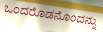
ಒಂದರೊಡನೊಂದನ್ನು